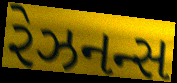
રેઝનન્સ